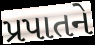
પ્રપાતને